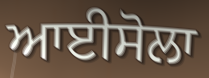
ਆਈਸੋਲਾ